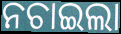
ନଚାଇଲା